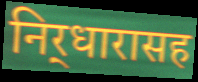
निर्धारासह